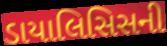
ડાયાલિસિસની